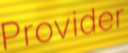
Provider